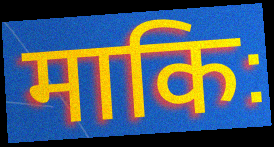
माकिः